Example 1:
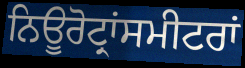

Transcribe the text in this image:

ਨਿਊਰੋਟ੍ਰਾਂਸਮੀਟਰਾਂ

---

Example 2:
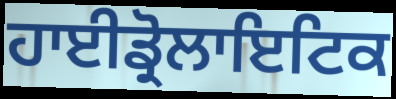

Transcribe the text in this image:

ਹਾਈਡ੍ਰੋਲਾਇਟਿਕ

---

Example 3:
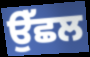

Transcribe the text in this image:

ਉੱਛਲ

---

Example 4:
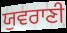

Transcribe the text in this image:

ਯੁਵਰਾਣੀ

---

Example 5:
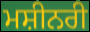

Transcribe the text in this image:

ਮਸ਼ੀਨਰੀ